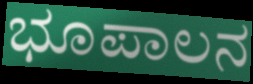
ಭೂಪಾಲನ